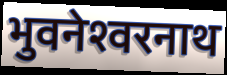
भुवनेश्वरनाथ